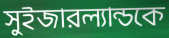
সুইজারল্যান্ডকে